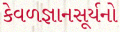
કેવળજ્ઞાનસૂર્યનો